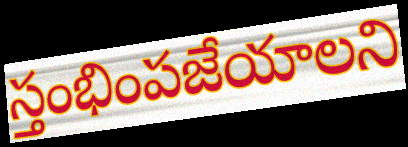
స్తంభింపజేయాలని